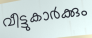
വീട്ടുകാർക്കും